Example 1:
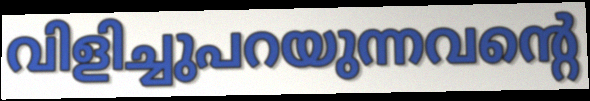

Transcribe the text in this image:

വിളിച്ചുപറയുന്നവന്റെ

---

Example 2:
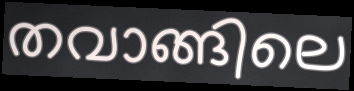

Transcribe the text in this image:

തവാങ്ങിലെ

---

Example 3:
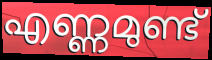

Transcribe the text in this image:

എണ്ണമുണ്ട്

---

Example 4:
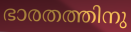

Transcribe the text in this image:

ഭാരതത്തിനു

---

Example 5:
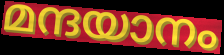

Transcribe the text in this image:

മന്ദയാനം